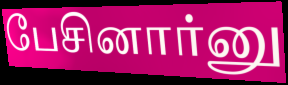
பேசினார்னு